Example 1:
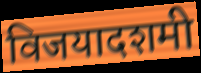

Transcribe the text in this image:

विजयादशमी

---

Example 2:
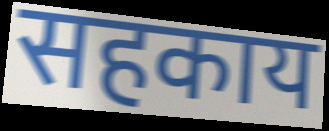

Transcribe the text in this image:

सहकाय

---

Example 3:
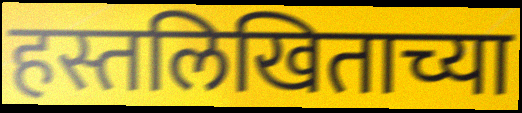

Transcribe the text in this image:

हस्तलिखिताच्या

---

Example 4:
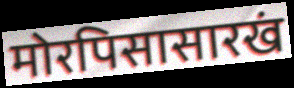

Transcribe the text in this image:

मोरपिसासारखं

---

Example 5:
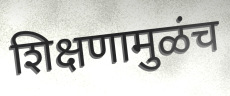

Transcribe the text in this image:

शिक्षणामुळंच